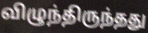
விழுந்திருந்தது